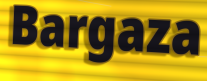
Bargaza